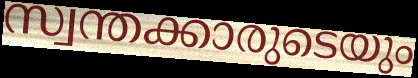
സ്വന്തക്കാരുടെയും